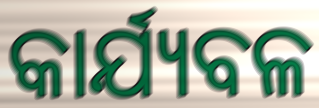
କାର୍ଯ୍ୟବଳ